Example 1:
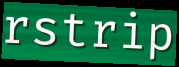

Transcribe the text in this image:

rstrip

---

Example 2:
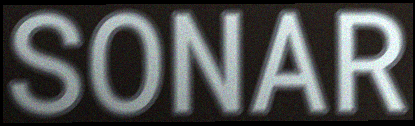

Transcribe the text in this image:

SONAR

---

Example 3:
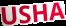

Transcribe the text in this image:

USHA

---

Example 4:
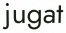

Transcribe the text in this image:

jugat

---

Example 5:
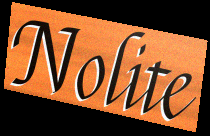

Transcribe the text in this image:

Nolite